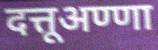
दत्तूअण्णा